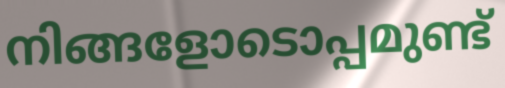
നിങ്ങളോടൊപ്പമുണ്ട്